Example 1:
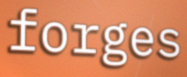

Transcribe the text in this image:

forges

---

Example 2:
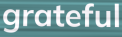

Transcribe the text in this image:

grateful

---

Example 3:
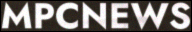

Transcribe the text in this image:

MPCNEWS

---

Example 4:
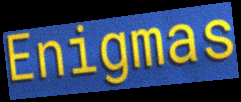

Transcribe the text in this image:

Enigmas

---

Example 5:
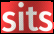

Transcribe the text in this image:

sits